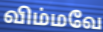
விம்மவே